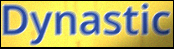
Dynastic